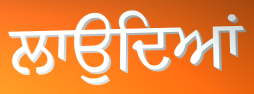
ਲਾਉਦਿਆਂ